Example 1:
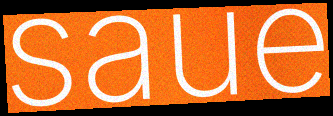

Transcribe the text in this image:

saue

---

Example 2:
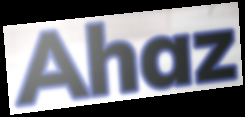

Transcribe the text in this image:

Ahaz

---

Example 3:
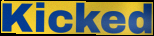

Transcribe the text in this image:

Kicked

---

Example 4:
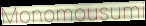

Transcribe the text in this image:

Monomousumi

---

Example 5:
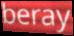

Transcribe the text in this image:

beray